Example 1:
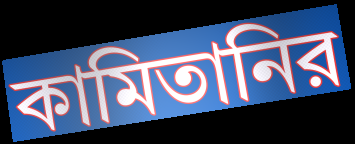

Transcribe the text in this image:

কামিতানির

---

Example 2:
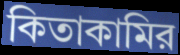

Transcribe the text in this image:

কিতাকামির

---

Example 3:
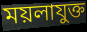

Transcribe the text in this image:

ময়লাযুক্ত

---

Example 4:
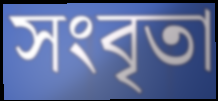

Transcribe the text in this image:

সংবৃতা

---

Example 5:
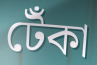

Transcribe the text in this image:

টেঁকা